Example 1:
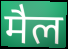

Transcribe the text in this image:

मैल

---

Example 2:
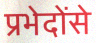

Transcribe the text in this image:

प्रभेदोंसे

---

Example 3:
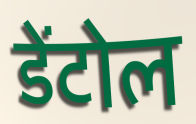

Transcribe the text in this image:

डेंटोल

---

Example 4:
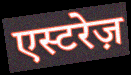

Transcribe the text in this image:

एस्टरेज़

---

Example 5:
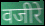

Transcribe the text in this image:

वजीरे